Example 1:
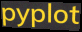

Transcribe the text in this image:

pyplot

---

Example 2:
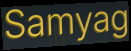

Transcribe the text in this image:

Samyag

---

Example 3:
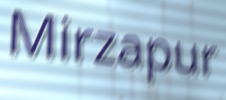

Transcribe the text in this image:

Mirzapur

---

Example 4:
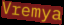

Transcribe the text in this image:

Vremya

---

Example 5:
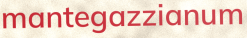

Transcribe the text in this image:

mantegazzianum